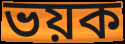
ভয়ক